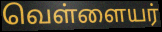
வெள்ளையர்